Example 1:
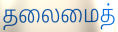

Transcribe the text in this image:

தலைமைத்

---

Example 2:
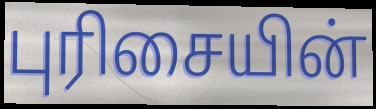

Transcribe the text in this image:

புரிசையின்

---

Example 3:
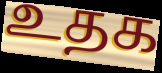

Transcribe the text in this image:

உதக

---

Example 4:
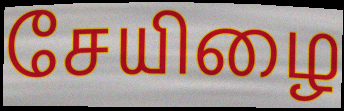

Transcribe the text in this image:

சேயிழை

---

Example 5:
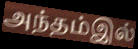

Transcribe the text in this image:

அந்தம்இல்